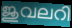
ജുവലറി